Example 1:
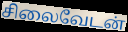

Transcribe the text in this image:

சிலைவேடன்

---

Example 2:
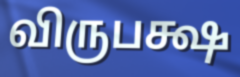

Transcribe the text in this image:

விருபக்ஷ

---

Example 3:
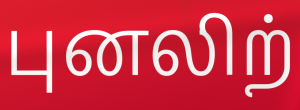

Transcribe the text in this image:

புனலிற்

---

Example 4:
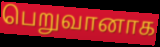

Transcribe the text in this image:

பெறுவானாக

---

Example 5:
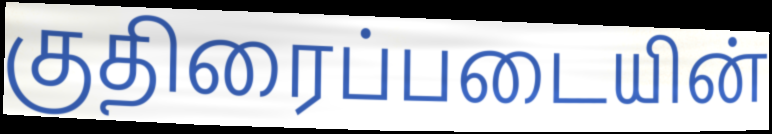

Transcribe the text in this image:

குதிரைப்படையின்